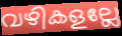
വഴികളല്ലേ